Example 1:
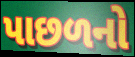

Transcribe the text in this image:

પાછળનો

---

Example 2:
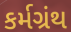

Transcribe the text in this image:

કર્મગ્રંથ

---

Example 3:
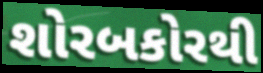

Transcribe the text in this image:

શોરબકોરથી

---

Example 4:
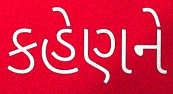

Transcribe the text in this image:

કહેણને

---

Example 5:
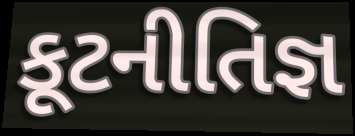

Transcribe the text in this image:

કૂટનીતિજ્ઞ